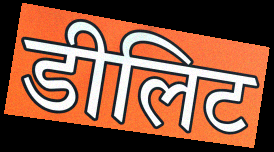
डीलिट